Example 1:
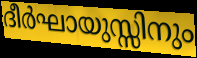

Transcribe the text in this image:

ദീർഘായുസ്സിനും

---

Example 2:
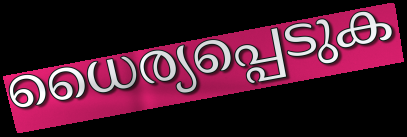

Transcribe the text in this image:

ധൈര്യപ്പെടുക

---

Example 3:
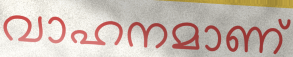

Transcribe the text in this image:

വാഹനമാണ്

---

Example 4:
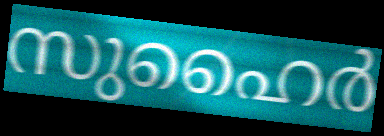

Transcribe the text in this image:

സുഹൈർ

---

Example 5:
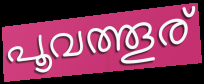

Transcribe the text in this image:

പൂവത്തൂര്